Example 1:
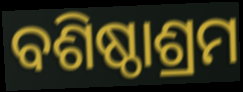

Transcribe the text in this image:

ବଶିଷ୍ଠାଶ୍ରମ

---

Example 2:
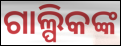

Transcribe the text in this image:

ଗାଲ୍ପିକଙ୍କ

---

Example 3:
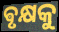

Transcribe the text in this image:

ଵୃକ୍ଷକୁ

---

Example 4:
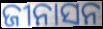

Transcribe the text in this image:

ଜୀନାସନ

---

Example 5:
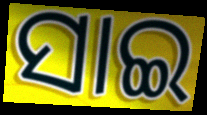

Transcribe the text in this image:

ସାଇ